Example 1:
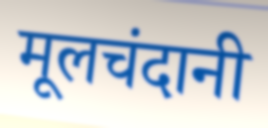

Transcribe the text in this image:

मूलचंदानी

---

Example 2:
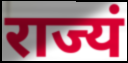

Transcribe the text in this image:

राज्यं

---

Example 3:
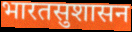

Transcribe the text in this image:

भारतसुशासन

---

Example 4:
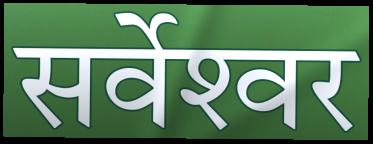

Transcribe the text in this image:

सर्वेश्‍वर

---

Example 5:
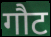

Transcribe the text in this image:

गौट